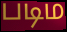
படிம